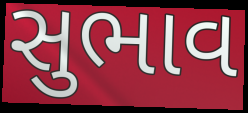
સુભાવ